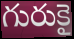
గురుకై